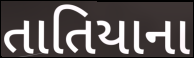
તાતિયાના